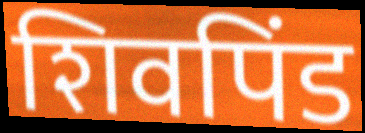
शिवपिंड